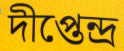
দীপ্তেন্দ্র